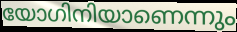
യോഗിനിയാണെന്നും